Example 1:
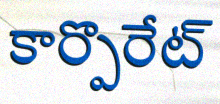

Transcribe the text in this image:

కార్పొరేట్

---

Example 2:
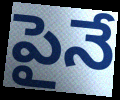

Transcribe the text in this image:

పైనే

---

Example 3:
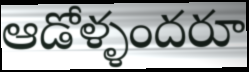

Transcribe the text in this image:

ఆడోళ్ళందరూ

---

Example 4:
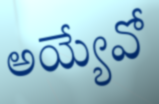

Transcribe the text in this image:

అయ్యేవో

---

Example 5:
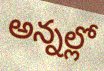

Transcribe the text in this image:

అన్నల్లో